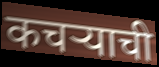
कचऱ्याची